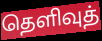
தெளிவுத்